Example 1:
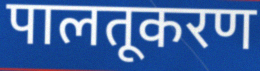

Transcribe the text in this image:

पालतूकरण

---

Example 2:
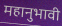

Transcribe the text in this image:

महानुभावी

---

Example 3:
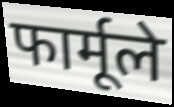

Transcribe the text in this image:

फार्मूले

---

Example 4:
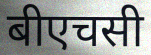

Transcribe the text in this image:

बीएचसी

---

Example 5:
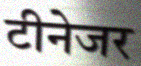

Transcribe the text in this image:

टीनेजर